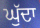
ਘੁੱਦਾ